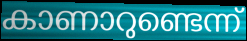
കാണാറുണ്ടെന്ന്